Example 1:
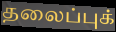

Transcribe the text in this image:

தலைப்புக்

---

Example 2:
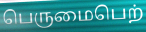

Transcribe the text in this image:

பெருமைபெற்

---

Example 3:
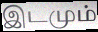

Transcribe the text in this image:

இடமும்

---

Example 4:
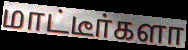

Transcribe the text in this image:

மாட்டீர்களா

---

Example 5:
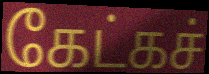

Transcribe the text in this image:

கேட்கச்